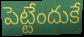
పెట్టేందుకే